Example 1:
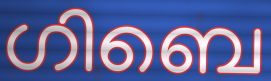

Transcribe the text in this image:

ഗിബെ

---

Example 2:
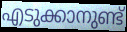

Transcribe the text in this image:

എടുക്കാനുണ്ട്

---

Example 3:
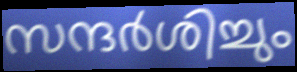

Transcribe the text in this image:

സന്ദർശിച്ചും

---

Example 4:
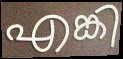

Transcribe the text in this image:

എങ്കി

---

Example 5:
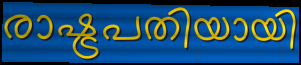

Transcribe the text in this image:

രാഷ്ട്രപതിയായി